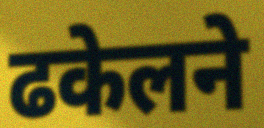
ढकेलने